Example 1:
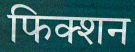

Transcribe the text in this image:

फिक्‍शन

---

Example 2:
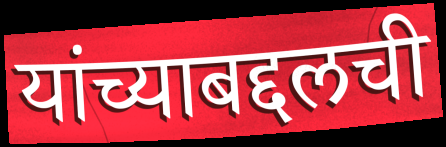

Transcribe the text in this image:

यांच्याबद्दलची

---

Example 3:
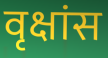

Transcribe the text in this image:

वृक्षांस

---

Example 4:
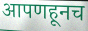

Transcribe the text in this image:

आपणहूनच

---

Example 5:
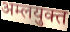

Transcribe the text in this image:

अम्लयुक्त